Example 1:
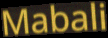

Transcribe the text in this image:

Mabali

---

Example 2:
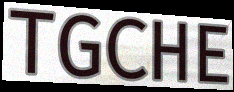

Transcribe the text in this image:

TGCHE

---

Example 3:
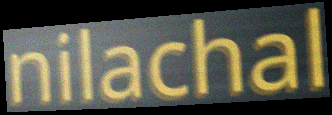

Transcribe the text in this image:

nilachal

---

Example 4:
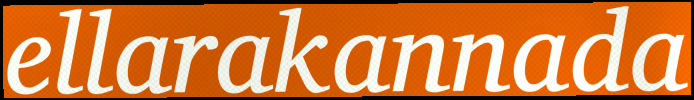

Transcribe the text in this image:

ellarakannada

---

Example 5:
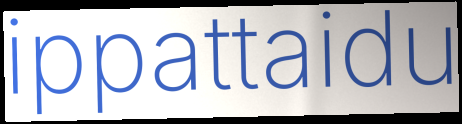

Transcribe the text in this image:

ippattaidu